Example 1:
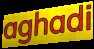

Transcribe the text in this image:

aghadi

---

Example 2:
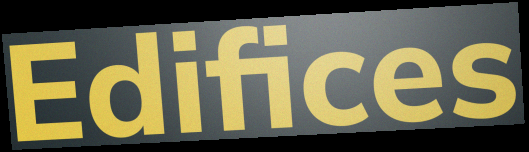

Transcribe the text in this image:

Edifices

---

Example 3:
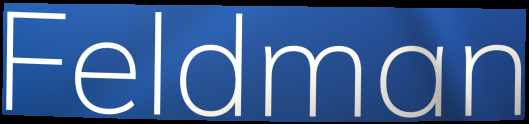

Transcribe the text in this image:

Feldman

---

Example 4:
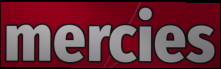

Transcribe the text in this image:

mercies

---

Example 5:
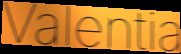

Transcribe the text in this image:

Valentia